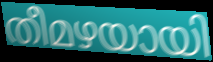
തീമഴയായി